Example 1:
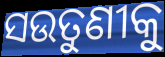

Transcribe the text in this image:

ସଉତୁଣୀକୁ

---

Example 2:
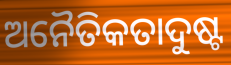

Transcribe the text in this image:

ଅନୈତିକତାଦୁଷ୍ଟ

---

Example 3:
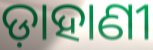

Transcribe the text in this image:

ଡ଼ାହାଣୀ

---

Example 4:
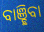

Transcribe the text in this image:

ବାଞ୍ଛିବା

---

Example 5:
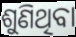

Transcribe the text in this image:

ଶୁଣିଥିବା